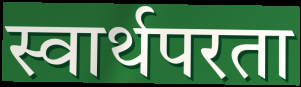
स्वार्थपरता